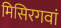
मिसिरगवां